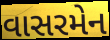
વાસરમેન